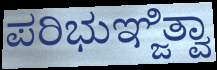
ಪರಿಭುಞ್ಜಿತ್ವಾ